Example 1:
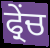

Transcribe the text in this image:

ਫ੍ਰੇੰਚ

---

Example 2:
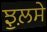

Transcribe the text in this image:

ਝੁਲ਼ਸੇ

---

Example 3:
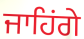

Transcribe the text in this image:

ਜਾਹਿਂਗੇ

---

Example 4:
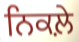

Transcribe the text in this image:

ਨਿਕਲ਼ੇ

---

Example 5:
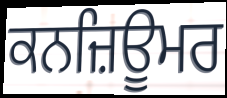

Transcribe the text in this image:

ਕਨਜ਼ਿਊਮਰ